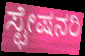
ಸ್ಟೇಷನರಿ